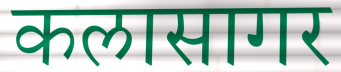
कलासागर